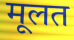
मूलत